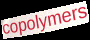
copolymers